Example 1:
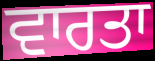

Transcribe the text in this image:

ਵਾਰਤਾ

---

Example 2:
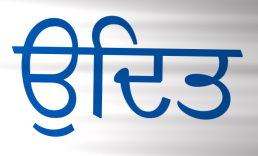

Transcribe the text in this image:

ਉਦਿਤ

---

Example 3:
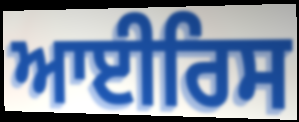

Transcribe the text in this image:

ਆਈਰਿਸ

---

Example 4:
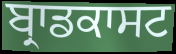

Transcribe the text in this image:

ਬ੍ਰਾਡਕਾਸਟ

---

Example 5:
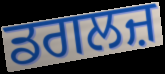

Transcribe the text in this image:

ਡਗਲਜ਼